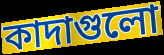
কাদাগুলো